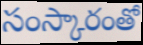
సంస్కారంతో